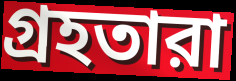
গ্রহতারা